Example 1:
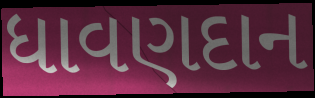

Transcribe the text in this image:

ધાવણદાન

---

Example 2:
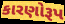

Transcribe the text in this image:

કારણોરૂપ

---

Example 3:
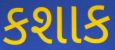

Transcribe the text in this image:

કશાક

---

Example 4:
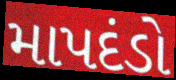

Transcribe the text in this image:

માપદંડો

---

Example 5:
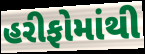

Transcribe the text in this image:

હરીફોમાંથી